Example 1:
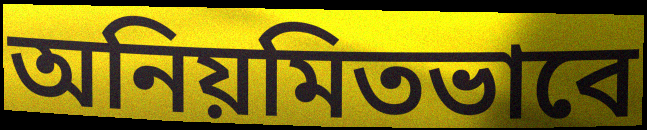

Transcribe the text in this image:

অনিয়মিতভাবে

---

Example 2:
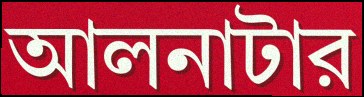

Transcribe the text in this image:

আলনাটার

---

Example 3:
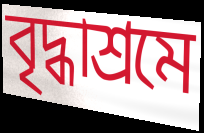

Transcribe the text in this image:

বৃদ্ধাশ্রমে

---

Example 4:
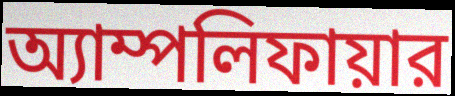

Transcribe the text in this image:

অ্যাম্পলিফায়ার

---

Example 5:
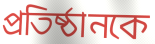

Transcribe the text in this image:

প্রতিষ্ঠানকে